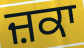
ਜ਼ਕਾ